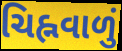
ચિહ્નવાળું